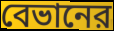
বেভানের